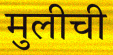
मुलीची